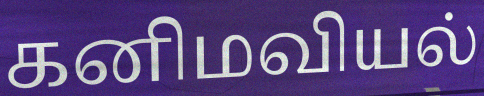
கனிமவியல்